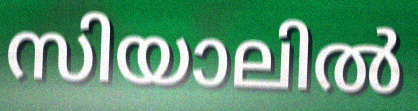
സിയാലിൽ